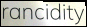
rancidity